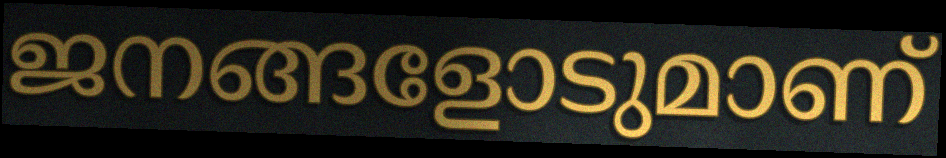
ജനങ്ങളോടുമാണ്